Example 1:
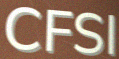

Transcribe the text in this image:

CFSI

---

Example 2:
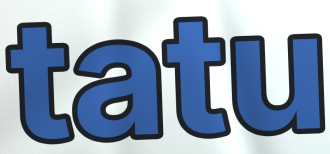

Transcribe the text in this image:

tatu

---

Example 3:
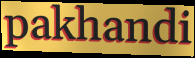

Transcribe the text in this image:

pakhandi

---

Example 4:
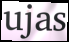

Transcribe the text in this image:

ujas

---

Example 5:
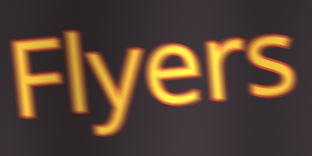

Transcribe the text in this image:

Flyers